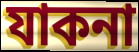
যাকনা